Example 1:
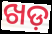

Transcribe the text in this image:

ଖଡ଼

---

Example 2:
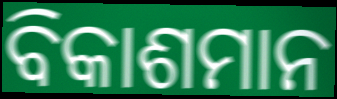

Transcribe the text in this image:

ବିକାଶମାନ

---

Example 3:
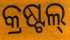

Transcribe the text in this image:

କ୍ରଷ୍ଟଲ୍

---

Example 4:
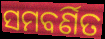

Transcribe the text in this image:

ସମବର୍ଣିତ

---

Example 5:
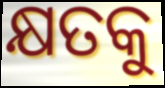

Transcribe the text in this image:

କ୍ଷତକୁ